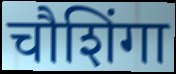
चौशिंगा